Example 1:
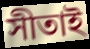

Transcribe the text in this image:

সীতাই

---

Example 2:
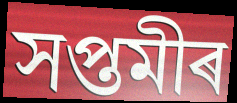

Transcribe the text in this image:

সপ্তমীৰ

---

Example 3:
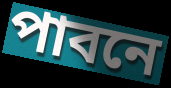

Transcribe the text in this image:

পাবনে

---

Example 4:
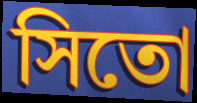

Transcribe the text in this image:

সিতো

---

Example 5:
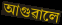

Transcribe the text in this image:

আগুৱালে